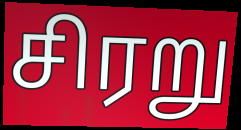
சிரறு